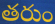
తరుం